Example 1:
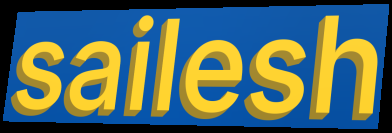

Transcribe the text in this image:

sailesh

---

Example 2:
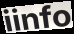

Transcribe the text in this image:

iinfo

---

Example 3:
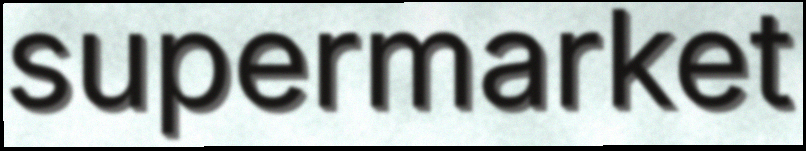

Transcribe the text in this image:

supermarket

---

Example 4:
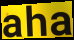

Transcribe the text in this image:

aha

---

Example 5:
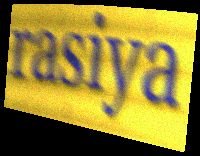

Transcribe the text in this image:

rasiya